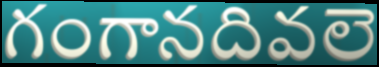
గంగానదివలె